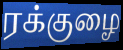
ரக்குழை